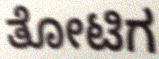
ತೋಟಿಗ